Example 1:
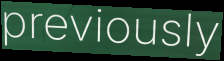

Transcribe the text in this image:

previously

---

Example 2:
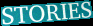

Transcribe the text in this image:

STORIES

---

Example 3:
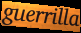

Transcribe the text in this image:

guerrilla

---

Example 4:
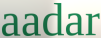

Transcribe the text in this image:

aadar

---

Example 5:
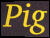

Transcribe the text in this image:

Pig